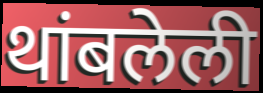
थांबलेली